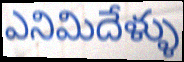
ఎనిమిదేళ్ళు